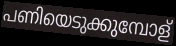
പണിയെടുക്കുമ്പോള്